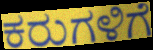
ಕರುಗಳಿಗೆ